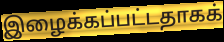
இழைக்கப்பட்டதாகக்